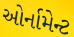
ઓર્નામેન્ટ